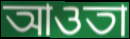
আওতা